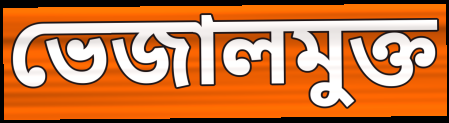
ভেজালমুক্ত